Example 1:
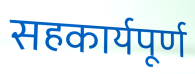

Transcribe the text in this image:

सहकार्यपूर्ण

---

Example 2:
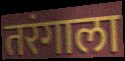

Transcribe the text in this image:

तरंगाला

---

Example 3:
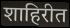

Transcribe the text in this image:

शाहिरीत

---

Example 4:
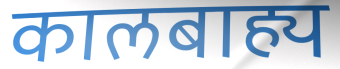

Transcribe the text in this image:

कालबाह्य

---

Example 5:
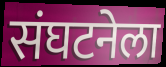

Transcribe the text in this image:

संघटनेला